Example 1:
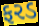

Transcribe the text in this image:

ફરડ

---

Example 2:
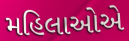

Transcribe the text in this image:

મહિલાઓએ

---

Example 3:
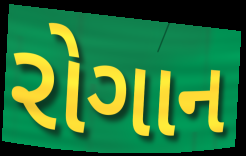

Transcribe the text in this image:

રોગાન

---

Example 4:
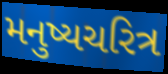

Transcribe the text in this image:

મનુષ્યચરિત્ર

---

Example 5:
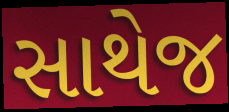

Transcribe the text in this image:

સાથેજ